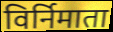
विर्निमाता